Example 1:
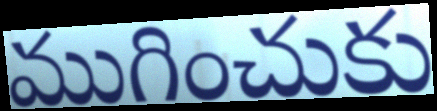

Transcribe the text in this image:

ముగించుకు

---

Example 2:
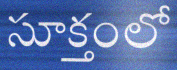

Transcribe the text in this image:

సూక్తంలో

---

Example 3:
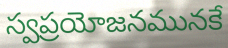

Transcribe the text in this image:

స్వప్రయోజనమునకే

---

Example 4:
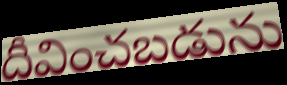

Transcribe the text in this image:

దీవించబడును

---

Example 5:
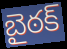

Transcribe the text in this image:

బైఠక్